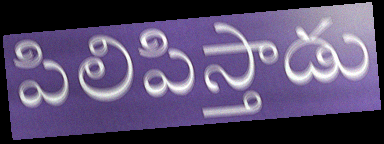
పిలిపిస్తాడు